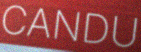
CANDU